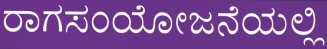
ರಾಗಸಂಯೋಜನೆಯಲ್ಲಿ